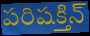
పరిషక్తిన్